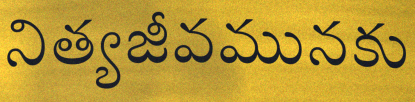
నిత్యజీవమునకు